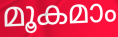
മൂകമാം